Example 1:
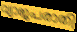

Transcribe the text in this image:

വ്യാജപരാതി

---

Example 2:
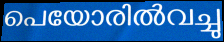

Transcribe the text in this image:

പെയോരിൽവച്ചു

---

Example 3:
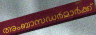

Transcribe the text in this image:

അംബാസഡർമാർക്ക്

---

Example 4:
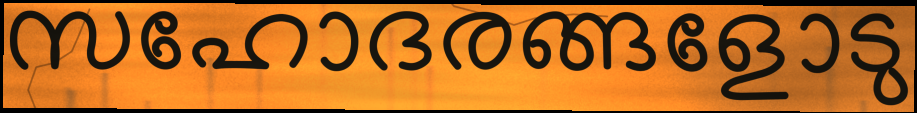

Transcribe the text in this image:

സഹോദരങ്ങളോടു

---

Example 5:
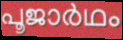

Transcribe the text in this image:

പൂജാർഥം